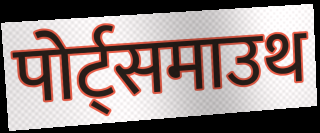
पोर्ट्समाउथ